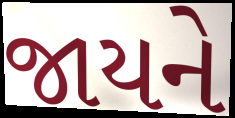
જાયને